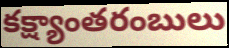
కక్ష్యాంతరంబులు